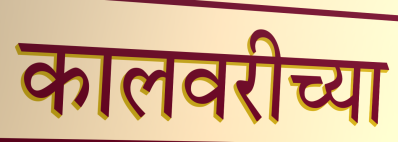
कालवरीच्या